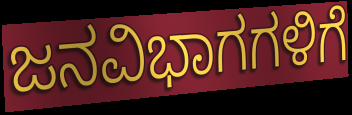
ಜನವಿಭಾಗಗಳಿಗೆ